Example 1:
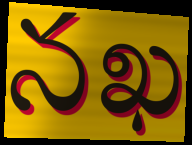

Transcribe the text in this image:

నఖ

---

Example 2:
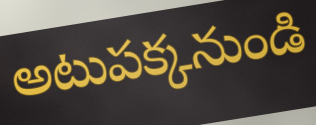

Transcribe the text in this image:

అటుపక్కనుండి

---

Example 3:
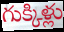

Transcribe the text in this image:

గుక్కిళ్లు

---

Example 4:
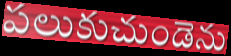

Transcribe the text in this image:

పలుకుచుండెను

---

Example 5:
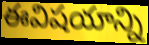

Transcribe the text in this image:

ఈవిషయాన్ని